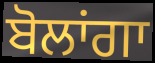
ਬੋਲਾਂਗਾ